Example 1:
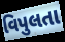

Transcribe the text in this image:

વિપુલતા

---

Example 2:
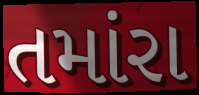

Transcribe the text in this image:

તમાંરા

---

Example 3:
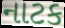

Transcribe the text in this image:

નાટક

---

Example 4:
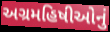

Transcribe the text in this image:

અગ્રમહિષીઓનું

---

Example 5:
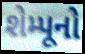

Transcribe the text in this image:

શેમ્પૂનો